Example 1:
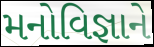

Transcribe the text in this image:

મનોવિજ્ઞાને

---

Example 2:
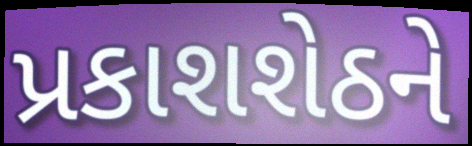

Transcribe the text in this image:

પ્રકાશશેઠને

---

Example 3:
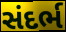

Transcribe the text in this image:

સંદર્ભ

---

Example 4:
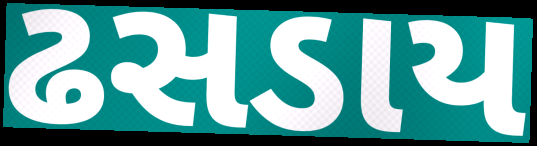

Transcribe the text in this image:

ઢસડાય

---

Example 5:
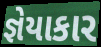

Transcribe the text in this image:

જ્ઞેયાકાર